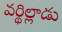
వర్థిల్లాడు